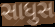
સાધુસ